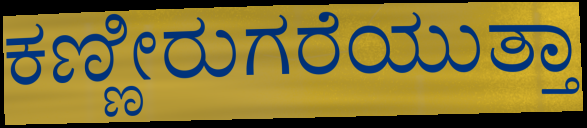
ಕಣ್ಣೀರುಗರೆಯುತ್ತಾ